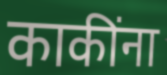
काकींना